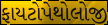
ફાયટોપેથોલોજી